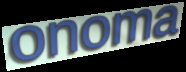
onoma